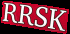
RRSK